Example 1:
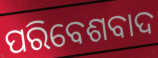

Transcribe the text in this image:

ପରିବେଶବାଦ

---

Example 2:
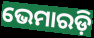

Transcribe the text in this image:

ଭେମାରଡ଼ି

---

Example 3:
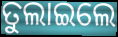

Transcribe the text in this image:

ତୁଲାଇଲେ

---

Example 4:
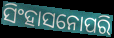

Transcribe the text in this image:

ସିଂହାସନୋପରି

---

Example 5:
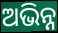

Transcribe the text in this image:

ଅଭିନ୍ନ